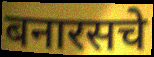
बनारसचे